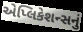
એપ્લિકેશન્સનું